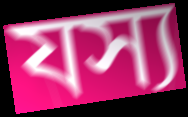
যস্য